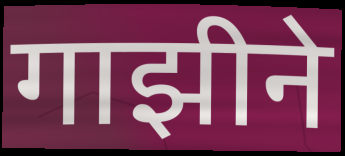
गाझीने